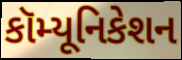
કૉમ્યૂનિકેશન